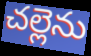
చల్లెను